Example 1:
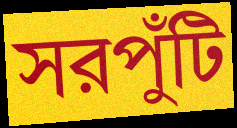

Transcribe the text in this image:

সরপুঁটি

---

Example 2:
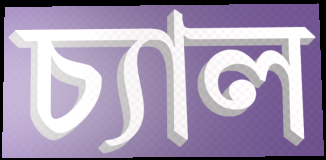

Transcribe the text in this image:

চ্যাল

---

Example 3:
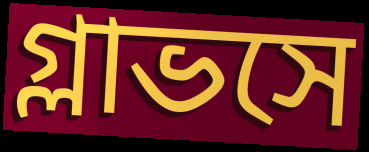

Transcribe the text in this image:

গ্লাভসে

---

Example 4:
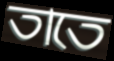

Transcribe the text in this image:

তাতে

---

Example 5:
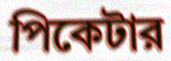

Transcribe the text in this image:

পিকেটার